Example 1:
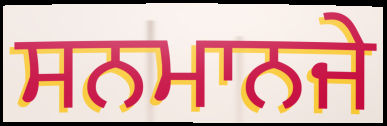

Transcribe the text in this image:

ਸਨਮਾਨਜੇ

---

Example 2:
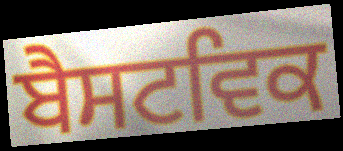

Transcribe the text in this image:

ਬੈਸਟਵਿਕ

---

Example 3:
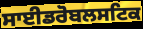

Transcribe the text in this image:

ਸਾਈਡਰੋਬਲਸਟਿਕ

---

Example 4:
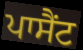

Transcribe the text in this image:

ਪਾਸੈਂਟ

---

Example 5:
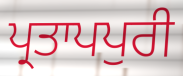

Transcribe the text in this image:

ਪ੍ਰਤਾਪਪੁਰੀ